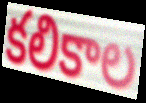
కలికాల